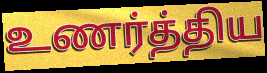
உணர்த்திய